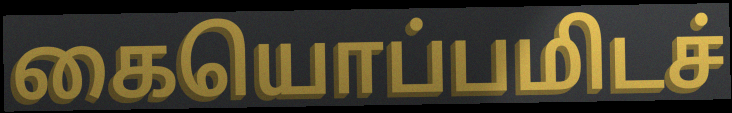
கையொப்பமிடச்